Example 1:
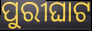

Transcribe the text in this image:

ପୁରୀଘାଟ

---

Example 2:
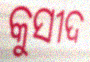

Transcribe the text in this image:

କୁସୀଦ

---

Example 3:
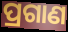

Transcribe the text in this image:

ପ୍ରଗାଣ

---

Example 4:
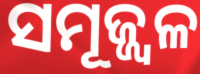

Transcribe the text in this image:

ସମୂଜ୍ଜ୍ୱଳ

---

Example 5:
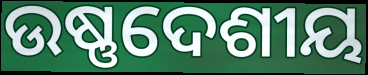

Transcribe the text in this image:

ଉଷ୍ଣଦେଶୀୟ